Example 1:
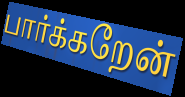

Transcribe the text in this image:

பார்க்கறேன்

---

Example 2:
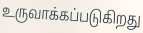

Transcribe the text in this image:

உருவாக்கப்படுகிறது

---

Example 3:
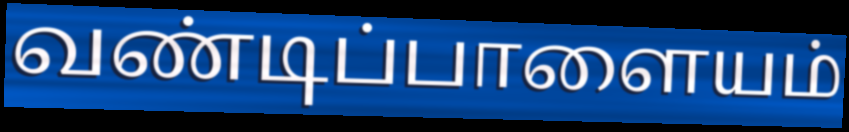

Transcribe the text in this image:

வண்டிப்பாளையம்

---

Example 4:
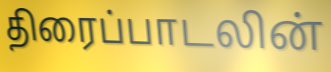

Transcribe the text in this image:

திரைப்பாடலின்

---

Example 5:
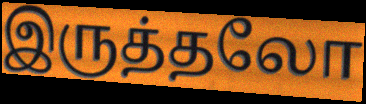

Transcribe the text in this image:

இருத்தலோ